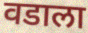
वडाला